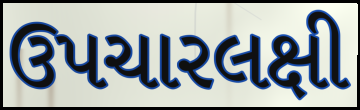
ઉપચારલક્ષી